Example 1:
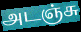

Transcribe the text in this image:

அடஞ்சு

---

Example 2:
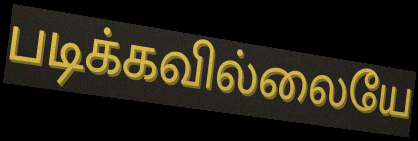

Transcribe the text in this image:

படிக்கவில்லையே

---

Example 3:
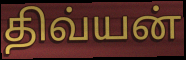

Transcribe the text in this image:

திவ்யன்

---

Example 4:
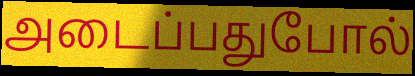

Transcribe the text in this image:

அடைப்பதுபோல்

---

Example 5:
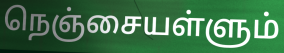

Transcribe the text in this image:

நெஞ்சையள்ளும்